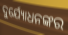
ଦୁର୍ଯ୍ୟୋଧନଙ୍କର